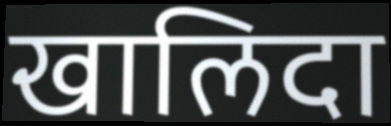
खालिदा